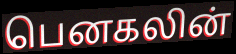
பெனகலின்